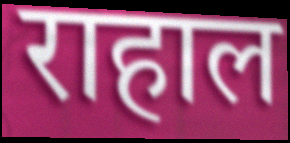
राहाल